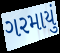
ગરમાયું